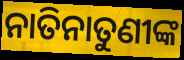
ନାତିନାତୁଣୀଙ୍କ